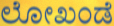
ಲೋಖಂಡೆ